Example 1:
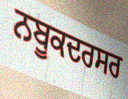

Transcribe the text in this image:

ਨਬੂਕਦਰਸਰ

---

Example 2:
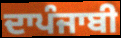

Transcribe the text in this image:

ਦਾਪੰਜਾਬੀ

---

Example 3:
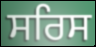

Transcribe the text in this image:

ਸਰਿਸ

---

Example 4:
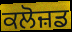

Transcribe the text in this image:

ਕਲੋਜ਼ਡ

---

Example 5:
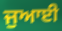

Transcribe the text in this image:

ਜੁਆਈ